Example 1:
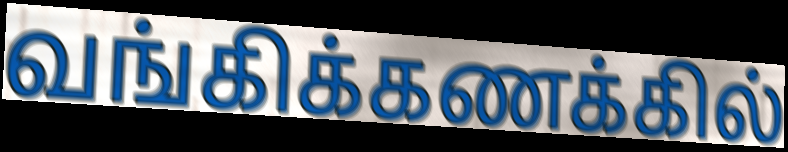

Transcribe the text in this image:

வங்கிக்கணக்கில்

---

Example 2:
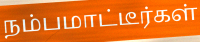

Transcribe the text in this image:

நம்பமாட்டீர்கள்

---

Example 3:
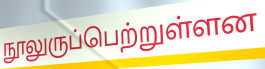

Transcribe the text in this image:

நூலுருப்பெற்றுள்ளன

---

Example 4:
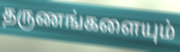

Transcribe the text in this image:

தருணங்களையும்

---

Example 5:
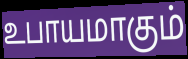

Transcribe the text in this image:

உபாயமாகும்